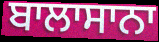
ਬਾਲਾਸਾਨਾ